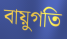
বায়ুগতি